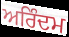
ਅਰਿੰਦਮ